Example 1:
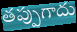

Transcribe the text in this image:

తప్పుగాదు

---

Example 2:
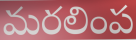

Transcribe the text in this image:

మరలింప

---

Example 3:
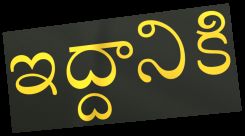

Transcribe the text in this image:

ఇద్దానికి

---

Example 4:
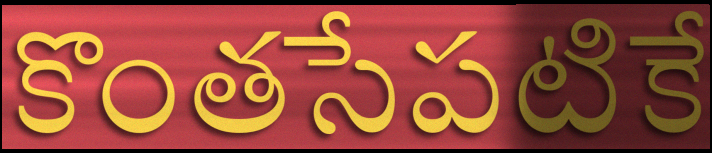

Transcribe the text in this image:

కొంతసేపటికే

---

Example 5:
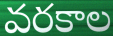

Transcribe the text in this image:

వరకాల